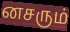
னசரும்